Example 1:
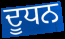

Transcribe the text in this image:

ਦੂਧਨ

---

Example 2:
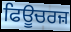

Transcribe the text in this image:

ਫਿਊਚਰਜ਼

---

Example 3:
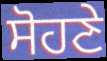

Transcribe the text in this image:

ਸੋਹਣੇ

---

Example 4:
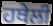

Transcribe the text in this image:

ਹਥੇਲੀ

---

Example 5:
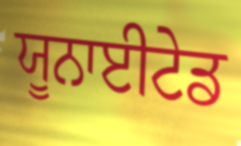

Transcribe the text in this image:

ਯੂਨਾਈਟੇਡ